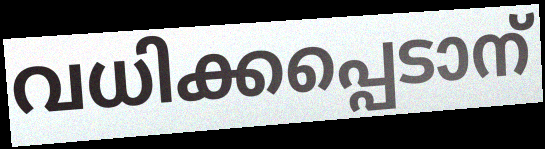
വധിക്കപ്പെടാന്